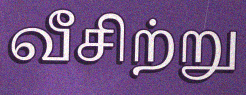
வீசிற்று